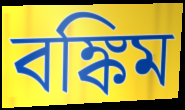
বঙ্কিম